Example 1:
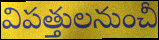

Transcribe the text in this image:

విపత్తులనుంచీ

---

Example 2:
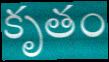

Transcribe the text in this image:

కృతం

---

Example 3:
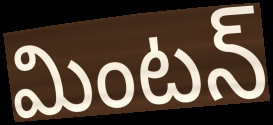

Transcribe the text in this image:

మింటన్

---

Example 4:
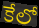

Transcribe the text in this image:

కేలో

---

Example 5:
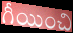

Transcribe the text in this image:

గీయించి